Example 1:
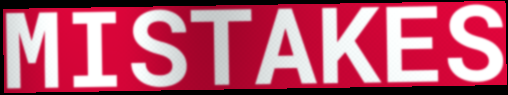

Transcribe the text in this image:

MISTAKES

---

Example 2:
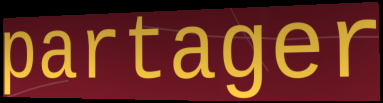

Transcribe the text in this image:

partager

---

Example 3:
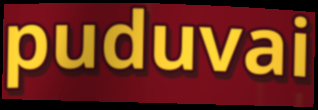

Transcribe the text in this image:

puduvai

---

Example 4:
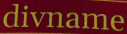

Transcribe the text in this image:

divname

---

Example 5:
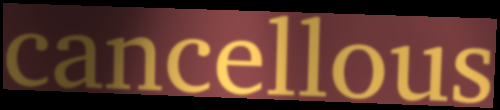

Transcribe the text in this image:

cancellous